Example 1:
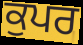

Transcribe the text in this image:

ਕੁਪਰ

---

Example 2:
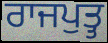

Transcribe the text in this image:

ਰਾਜਪੁਤ੍ਤ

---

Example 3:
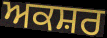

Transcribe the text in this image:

ਅਕਸ਼ਰ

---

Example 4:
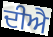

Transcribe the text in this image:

ਦੀਐ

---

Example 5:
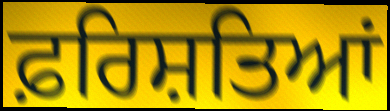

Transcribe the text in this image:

ਫ਼ਰਿਸ਼ਤਿਆਂ